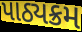
પાઠ્યક્રમ